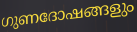
ഗുണദോഷങ്ങളും